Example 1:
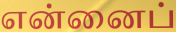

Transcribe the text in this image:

என்னைப்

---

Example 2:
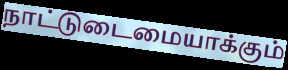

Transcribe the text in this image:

நாட்டுடைமையாக்கும்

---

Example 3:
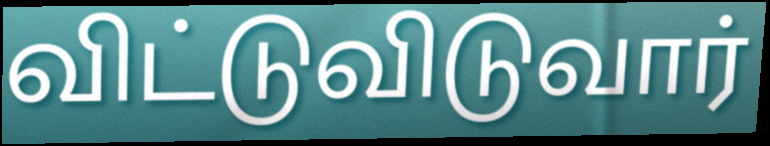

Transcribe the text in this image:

விட்டுவிடுவார்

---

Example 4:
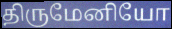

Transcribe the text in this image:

திருமேனியோ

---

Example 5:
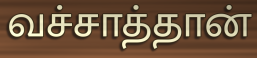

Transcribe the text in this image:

வச்சாத்தான்